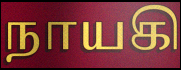
நாயகி